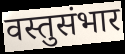
वस्तुसंभार